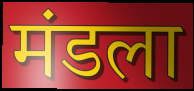
मंडला